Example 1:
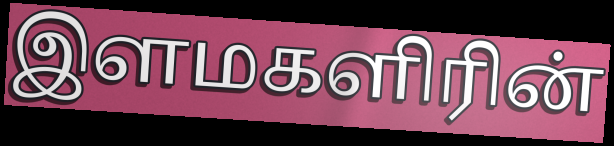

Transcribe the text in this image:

இளமகளிரின்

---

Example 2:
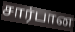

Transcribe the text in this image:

சார்பான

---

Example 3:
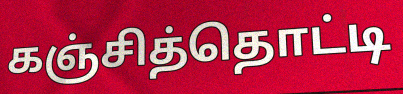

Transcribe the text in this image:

கஞ்சித்தொட்டி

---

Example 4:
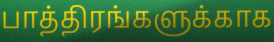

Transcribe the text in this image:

பாத்திரங்களுக்காக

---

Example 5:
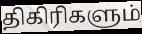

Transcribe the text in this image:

திகிரிகளும்